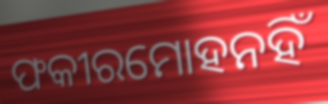
ଫକୀରମୋହନହିଁ